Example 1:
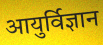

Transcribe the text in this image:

आयुर्विज्ञान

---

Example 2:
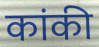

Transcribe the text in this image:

कांकी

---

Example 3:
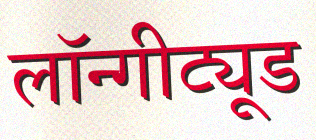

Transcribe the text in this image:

लॉन्गीट्यूड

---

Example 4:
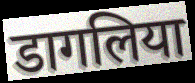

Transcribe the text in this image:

डागलिया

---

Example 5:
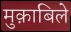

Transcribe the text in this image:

मुक़ाबिले